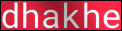
dhakhe